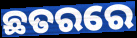
ଛତରରେ